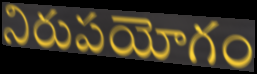
నిరుపయోగం